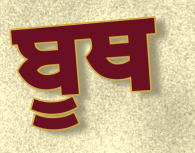
ਬੂਥ